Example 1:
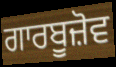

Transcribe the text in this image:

ਗਾਰਬੂਜ਼ੋਵ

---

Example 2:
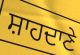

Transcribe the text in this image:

ਸ਼ਾਹਦਾਣੇ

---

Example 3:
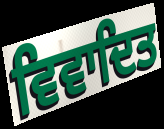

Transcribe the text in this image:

ਵਿਵਾਦਿਤ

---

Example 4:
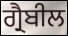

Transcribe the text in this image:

ਗ੍ਰੈਬੀਲ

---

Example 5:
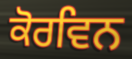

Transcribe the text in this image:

ਕੋਰਵਿਨ